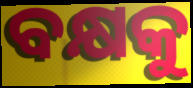
ବକ୍ଷକୁ